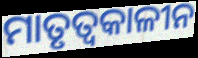
ମାତୃତ୍ୱକାଳୀନ